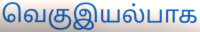
வெகுஇயல்பாக